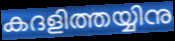
കദളിത്തയ്യിനു